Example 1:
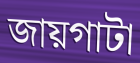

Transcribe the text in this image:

জায়গাটা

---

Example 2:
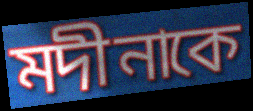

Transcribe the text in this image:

মদীনাকে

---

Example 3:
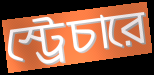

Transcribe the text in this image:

স্ট্রেচারে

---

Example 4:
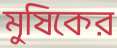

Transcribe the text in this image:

মুষিকের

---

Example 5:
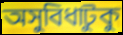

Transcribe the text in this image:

অসুবিধাটুকু